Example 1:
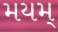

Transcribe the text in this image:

મયમ્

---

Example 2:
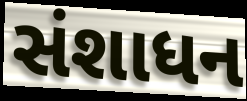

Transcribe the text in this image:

સંશાધન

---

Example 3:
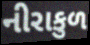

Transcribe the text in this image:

નીરાકુળ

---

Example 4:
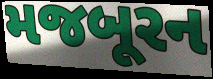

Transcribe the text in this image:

મજબૂરન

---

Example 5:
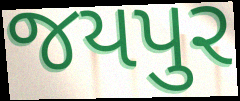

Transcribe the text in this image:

જયપુર